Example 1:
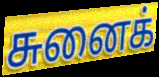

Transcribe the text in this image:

சுனைக்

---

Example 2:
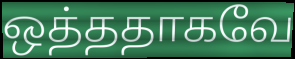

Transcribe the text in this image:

ஒத்ததாகவே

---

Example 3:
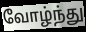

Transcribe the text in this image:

வோழ்ந்து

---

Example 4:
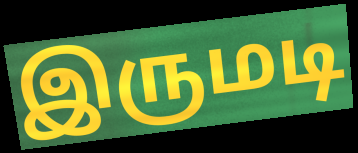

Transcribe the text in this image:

இருமடி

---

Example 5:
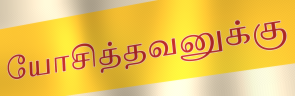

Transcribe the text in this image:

யோசித்தவனுக்கு